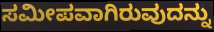
ಸಮೀಪವಾಗಿರುವುದನ್ನು